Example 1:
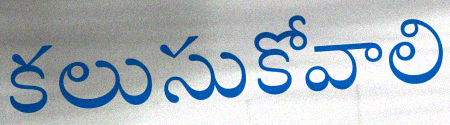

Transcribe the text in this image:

కలుసుకోవాలి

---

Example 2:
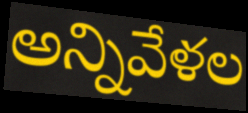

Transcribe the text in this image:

అన్నివేళల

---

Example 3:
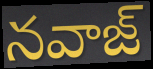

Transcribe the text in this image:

నవాజ్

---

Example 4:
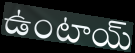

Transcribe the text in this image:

ఉంటాయ్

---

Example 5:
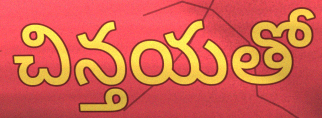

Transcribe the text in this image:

చిన్తయతో